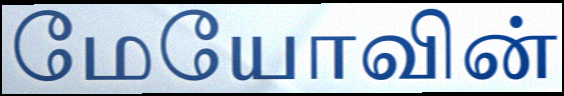
மேயோவின்